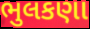
ભુલકણા